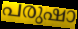
പരുഷാ